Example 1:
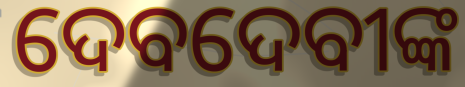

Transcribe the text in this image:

ଦେବଦେବୀଙ୍କ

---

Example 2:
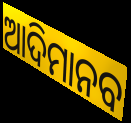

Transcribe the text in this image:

ଆଦିମାନବ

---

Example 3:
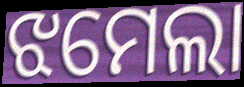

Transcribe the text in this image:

ଝମେଲା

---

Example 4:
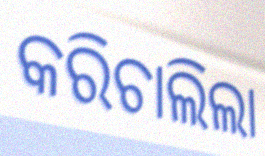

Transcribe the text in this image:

କରିଚାଲିଲା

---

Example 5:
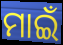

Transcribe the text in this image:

ମାଇଁ